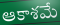
ఆకాశమే